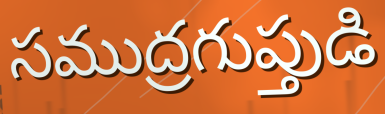
సముద్రగుప్తుడి